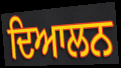
ਦਿਆਲਨ